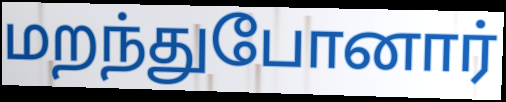
மறந்துபோனார்